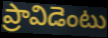
ప్రావిడెంటు